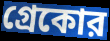
গ্রেকোর